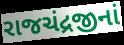
રાજચંદ્રજીનાં